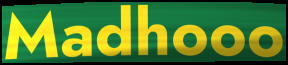
Madhooo